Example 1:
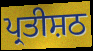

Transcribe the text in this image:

ਪ੍ਰਤੀਸ਼ਠ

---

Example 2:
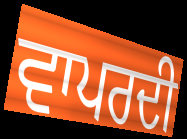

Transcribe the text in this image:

ਵਾਪਰਦੀ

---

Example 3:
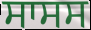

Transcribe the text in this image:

ਸਾਸਸ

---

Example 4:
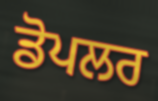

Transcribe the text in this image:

ਡੋਪਲਰ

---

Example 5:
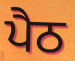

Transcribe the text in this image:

ਪੈਠ